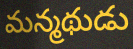
మన్మథుడు